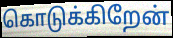
கொடுக்கிறேன்